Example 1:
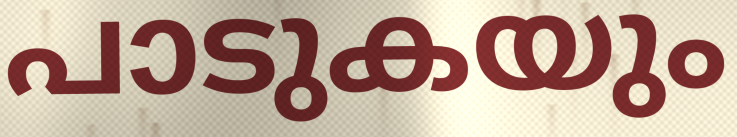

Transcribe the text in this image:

പാടുകയും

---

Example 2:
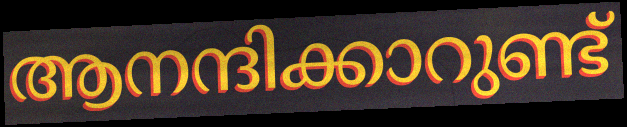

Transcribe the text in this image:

ആനന്ദിക്കാറുണ്ട്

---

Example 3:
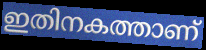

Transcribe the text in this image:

ഇതിനകത്താണ്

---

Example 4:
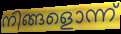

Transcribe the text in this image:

നിങ്ങളൊന്ന്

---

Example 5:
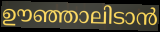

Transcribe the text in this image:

ഊഞ്ഞാലിടാൻ